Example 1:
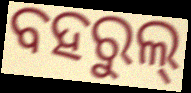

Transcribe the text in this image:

ବହରୁଲ୍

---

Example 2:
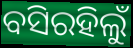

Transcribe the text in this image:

ବସିରହିଲୁଁ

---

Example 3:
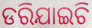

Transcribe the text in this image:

ଡରିଯାଇଚି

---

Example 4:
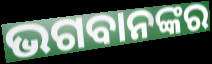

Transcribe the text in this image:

ଭଗବାନଙ୍କର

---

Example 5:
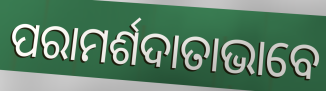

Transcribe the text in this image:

ପରାମର୍ଶଦାତାଭାବେ